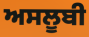
ਅਸਲੂਬੀ